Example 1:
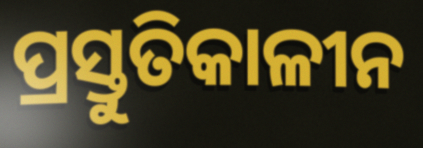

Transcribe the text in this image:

ପ୍ରସ୍ତୁତିକାଳୀନ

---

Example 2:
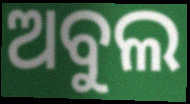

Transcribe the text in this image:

ଅବୁଲ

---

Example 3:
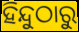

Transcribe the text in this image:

ହିନ୍ଦୁଠାରୁ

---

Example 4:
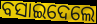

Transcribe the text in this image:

ବସାଇଦେଲେ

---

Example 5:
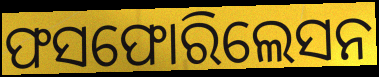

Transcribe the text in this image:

ଫସଫୋରିଲେସନ